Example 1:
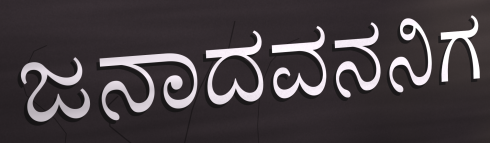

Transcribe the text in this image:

ಜನಾದವನನಿಗ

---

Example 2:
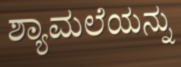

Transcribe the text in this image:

ಶ್ಯಾಮಲೆಯನ್ನು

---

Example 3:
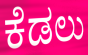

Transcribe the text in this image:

ಕೆಡಲು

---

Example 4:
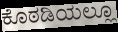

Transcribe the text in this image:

ಕೊಠಡಿಯಲ್ಲೂ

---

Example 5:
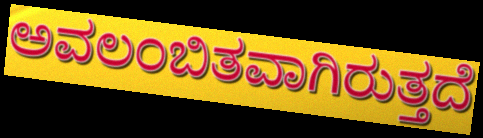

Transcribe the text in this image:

ಅವಲಂಬಿತವಾಗಿರುತ್ತದೆ